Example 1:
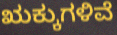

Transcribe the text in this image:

ಋಕ್ಕುಗಳಿವೆ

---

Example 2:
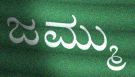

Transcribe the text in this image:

ಜಮ್ಮು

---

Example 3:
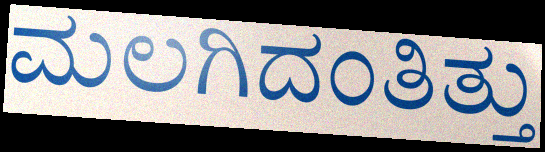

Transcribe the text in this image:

ಮಲಗಿದಂತಿತ್ತು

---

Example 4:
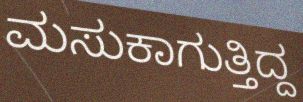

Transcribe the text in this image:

ಮಸುಕಾಗುತ್ತಿದ್ದ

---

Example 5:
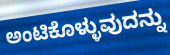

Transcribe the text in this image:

ಅಂಟಿಕೊಳ್ಳುವುದನ್ನು